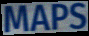
MAPS